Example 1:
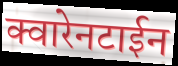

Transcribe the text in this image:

क्वारेनटाईन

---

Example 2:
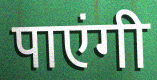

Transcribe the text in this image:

पाएंगी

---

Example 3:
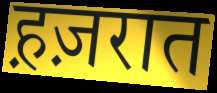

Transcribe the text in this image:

ह़ज़रात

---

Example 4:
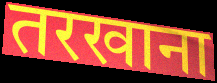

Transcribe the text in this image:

तरखाना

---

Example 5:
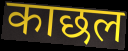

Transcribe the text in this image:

काछल